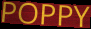
POPPY